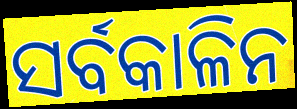
ସର୍ବକାଳିନ